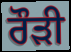
ਰੌੜੀ